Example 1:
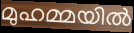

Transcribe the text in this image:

മുഹമ്മയിൽ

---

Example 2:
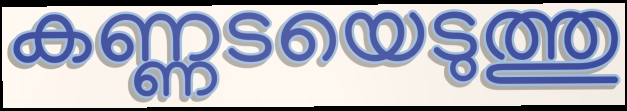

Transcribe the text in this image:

കണ്ണടയെടുത്തു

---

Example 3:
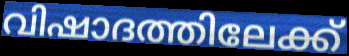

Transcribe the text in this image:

വിഷാദത്തിലേക്ക്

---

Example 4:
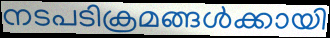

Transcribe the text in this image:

നടപടിക്രമങ്ങൾക്കായി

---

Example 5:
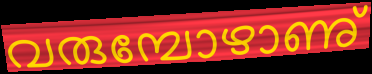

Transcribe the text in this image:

വരുമ്പോഴാണു്